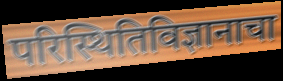
परिस्थितिविज्ञानाचा